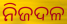
ନିଜଦଳ